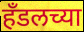
हॅंडलच्या